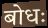
बोधः